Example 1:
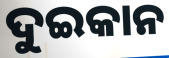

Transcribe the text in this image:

ଦୁଇକାନ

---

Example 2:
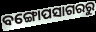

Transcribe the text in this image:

ବଙ୍ଗୋପସାଗରରୁ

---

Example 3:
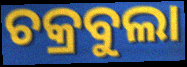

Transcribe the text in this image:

ଚକ୍ରବୁଲା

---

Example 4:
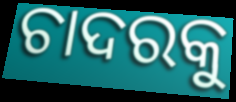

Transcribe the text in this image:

ଚାଦରକୁ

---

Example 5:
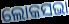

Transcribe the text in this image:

ଲୋକସଭା